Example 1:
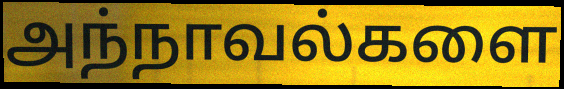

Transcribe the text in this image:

அந்நாவல்களை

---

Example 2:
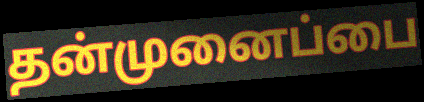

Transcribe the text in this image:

தன்முனைப்பை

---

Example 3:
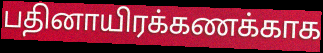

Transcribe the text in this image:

பதினாயிரக்கணக்காக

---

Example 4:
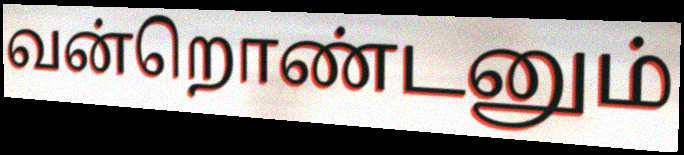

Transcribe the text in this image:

வன்றொண்டனும்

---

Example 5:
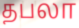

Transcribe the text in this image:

தபலா